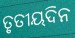
ତୃତୀୟଦିନ